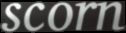
scorn